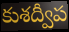
కుశద్వీప